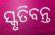
ସ୍କୃତିବନ୍ତ